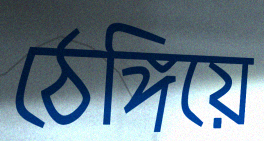
ঠেঙ্গিয়ে